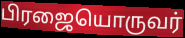
பிரஜையொருவர்